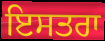
ਇਸਤਰਾ